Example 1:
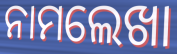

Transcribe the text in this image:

ନାମଲେଖା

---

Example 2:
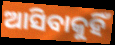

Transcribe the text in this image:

ଆସିବାକୁହିଁ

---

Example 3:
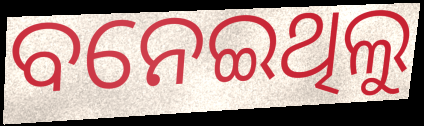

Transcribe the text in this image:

ବନେଇଥିଲୁ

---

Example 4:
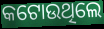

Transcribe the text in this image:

କଟୋଉଥିଲେ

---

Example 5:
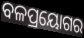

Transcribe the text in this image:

ବଳପ୍ରୟୋଗର